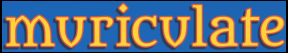
muriculate